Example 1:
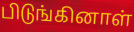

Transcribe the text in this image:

பிடுங்கினாள்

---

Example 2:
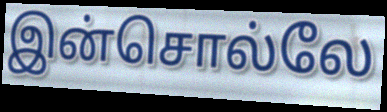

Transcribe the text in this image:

இன்சொல்லே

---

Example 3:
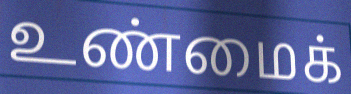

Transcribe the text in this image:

உண்மைக்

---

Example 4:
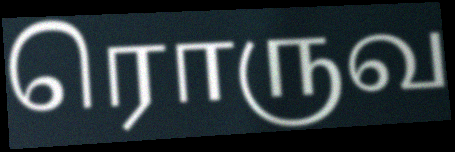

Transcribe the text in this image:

ரொருவ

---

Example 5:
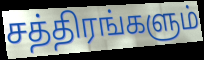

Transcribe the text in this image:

சத்திரங்களும்